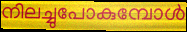
നിലച്ചുപോകുമ്പോൾ